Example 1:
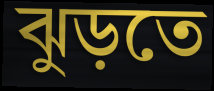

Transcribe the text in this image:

ঝুড়তে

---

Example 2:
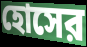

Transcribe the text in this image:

হোসের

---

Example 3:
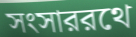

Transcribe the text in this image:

সংসাররথে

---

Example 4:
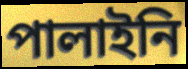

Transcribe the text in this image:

পালাইনি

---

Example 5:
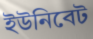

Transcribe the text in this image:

ইউনিবেট